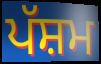
ਪੱਸ਼ਮ